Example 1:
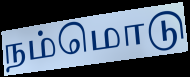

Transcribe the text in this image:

நம்மொடு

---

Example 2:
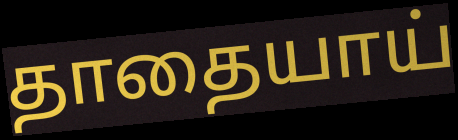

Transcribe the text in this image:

தாதையாய்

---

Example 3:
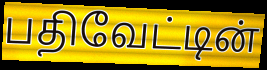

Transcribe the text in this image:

பதிவேட்டின்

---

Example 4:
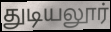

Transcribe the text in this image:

துடியலூர்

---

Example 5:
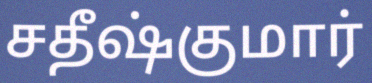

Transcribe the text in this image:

சதீஷ்குமார்